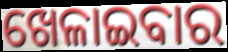
ଖେଳାଇବାର